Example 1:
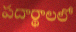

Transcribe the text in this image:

పదార్థాలలో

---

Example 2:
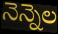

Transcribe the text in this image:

నెన్నెల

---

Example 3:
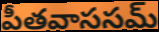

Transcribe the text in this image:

పీతవాససమ్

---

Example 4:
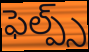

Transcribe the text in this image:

ఫెల్ప్స్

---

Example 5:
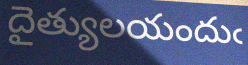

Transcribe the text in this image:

దైత్యులయందుఁ